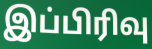
இப்பிரிவு